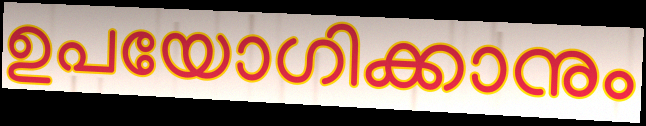
ഉപയോഗിക്കാനും